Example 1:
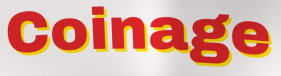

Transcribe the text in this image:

Coinage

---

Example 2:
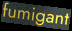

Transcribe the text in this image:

fumigant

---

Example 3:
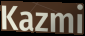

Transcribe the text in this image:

Kazmi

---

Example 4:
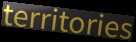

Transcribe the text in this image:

territories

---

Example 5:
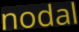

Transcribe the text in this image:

nodal